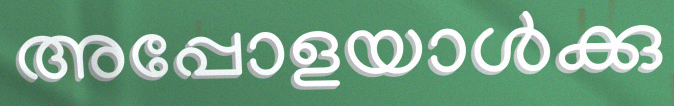
അപ്പോളയാൾക്കു